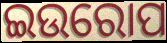
ଇଉରୋପ